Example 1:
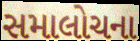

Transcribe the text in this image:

સમાલોચના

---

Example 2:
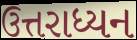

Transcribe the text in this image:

ઉત્તરાધ્યન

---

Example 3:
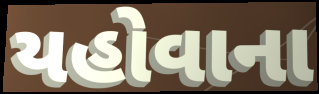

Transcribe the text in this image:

યહોવાના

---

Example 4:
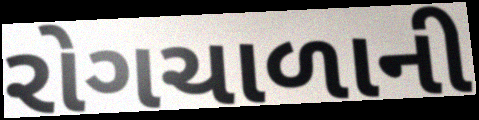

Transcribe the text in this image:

રોગચાળાની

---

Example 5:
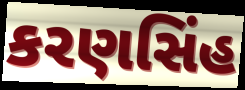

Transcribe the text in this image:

કરણસિંહ